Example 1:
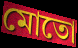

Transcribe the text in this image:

মোতো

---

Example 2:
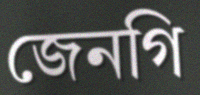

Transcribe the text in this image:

জেনগি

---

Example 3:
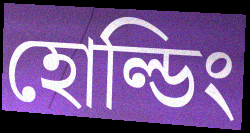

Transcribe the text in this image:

হোল্ডিং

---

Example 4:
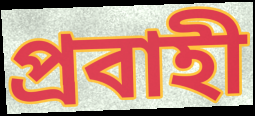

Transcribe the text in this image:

প্রবাহী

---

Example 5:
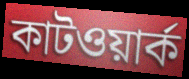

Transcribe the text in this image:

কাটওয়ার্ক